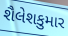
શૈલેશકુમાર